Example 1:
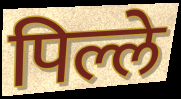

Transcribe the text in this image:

पिल्ले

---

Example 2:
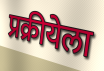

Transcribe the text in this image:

प्रक्रीयेला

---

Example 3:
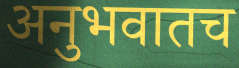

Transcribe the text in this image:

अनुभवातच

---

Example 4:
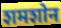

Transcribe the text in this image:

शमशोन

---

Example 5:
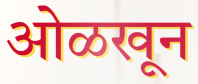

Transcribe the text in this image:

ओळखून